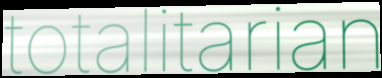
totalitarian